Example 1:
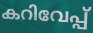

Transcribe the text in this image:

കറിവേപ്പ്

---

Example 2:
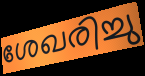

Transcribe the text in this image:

ശേഖരിച്ചു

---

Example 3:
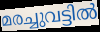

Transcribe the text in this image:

മരച്ചുവട്ടിൽ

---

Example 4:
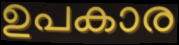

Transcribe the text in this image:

ഉപകാര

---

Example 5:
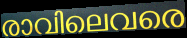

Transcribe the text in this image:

രാവിലെവരെ